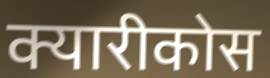
क्यारीकोस